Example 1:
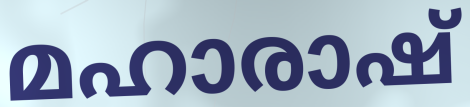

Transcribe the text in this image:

മഹാരാഷ്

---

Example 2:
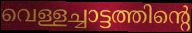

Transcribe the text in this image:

വെള്ളച്ചാട്ടത്തിന്റെ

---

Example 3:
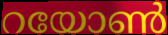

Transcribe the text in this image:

റയോൺ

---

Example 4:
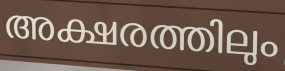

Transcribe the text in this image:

അക്ഷരത്തിലും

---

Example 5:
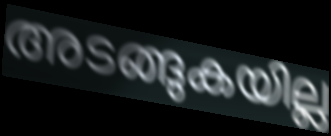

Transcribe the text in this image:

അടങ്ങുകയില്ല